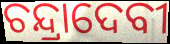
ଚନ୍ଦ୍ରାଦେବୀ